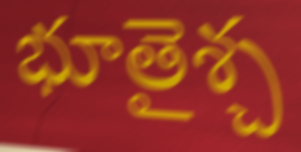
భూతైశ్చ